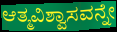
ಆತ್ಮವಿಶ್ವಾಸವನ್ನೇ